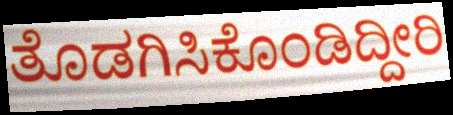
ತೊಡಗಿಸಿಕೊಂಡಿದ್ದೀರಿ